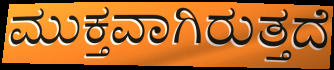
ಮುಕ್ತವಾಗಿರುತ್ತದೆ